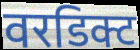
वरडिक्ट